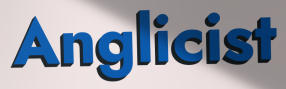
Anglicist